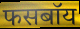
फसबॉय